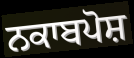
ਨਕਾਬਪੋਸ਼